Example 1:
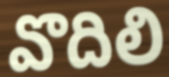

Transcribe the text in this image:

వొదిలి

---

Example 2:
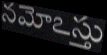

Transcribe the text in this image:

నమోఽస్తు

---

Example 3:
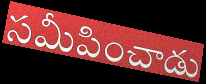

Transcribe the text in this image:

సమీపించాడు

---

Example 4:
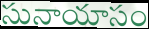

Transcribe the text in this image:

సునాయాసం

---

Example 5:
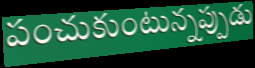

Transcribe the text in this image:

పంచుకుంటున్నప్పుడు